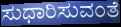
ಸುಧಾರಿಸುವಂತೆ